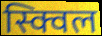
स्क्विल